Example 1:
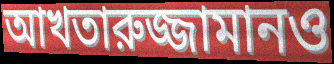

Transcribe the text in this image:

আখতারুজ্জামানও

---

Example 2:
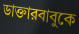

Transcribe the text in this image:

ডাক্তারবাবুকে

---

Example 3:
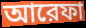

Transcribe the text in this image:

আরেফা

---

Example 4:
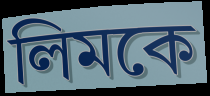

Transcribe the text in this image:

লিমকে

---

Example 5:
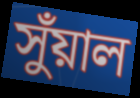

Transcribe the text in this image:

সুঁয়াল